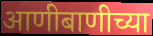
आणीबाणीच्या